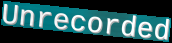
Unrecorded